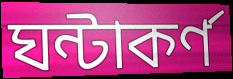
ঘন্টাকর্ণ